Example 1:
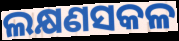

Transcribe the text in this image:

ଲକ୍ଷଣସକଳ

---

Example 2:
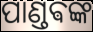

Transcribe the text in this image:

ପାଣ୍ଡଵଙ୍କ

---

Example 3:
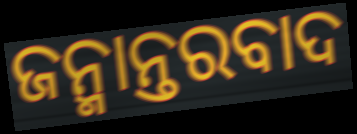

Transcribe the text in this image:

ଜନ୍ମାନ୍ତରବାଦ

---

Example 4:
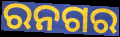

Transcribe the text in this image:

ରନଗର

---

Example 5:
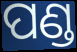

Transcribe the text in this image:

ପଣ୍ଡ